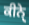
ਕੀਨੇੑ